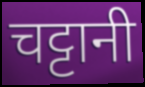
चट्टानी